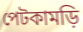
পেটকামড়ি